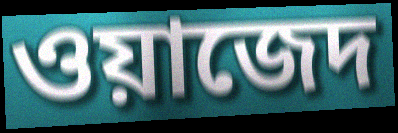
ওয়াজেদ